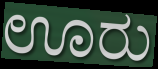
ಊರು